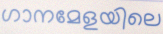
ഗാനമേളയിലെ